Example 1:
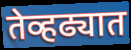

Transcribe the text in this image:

तेव्हढ्यात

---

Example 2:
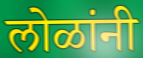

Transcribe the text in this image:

लोळांनी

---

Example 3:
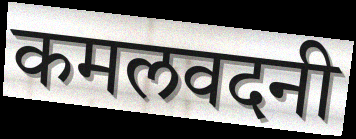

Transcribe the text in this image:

कमलवदनी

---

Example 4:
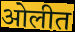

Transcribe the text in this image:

ओलीत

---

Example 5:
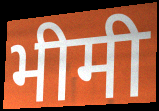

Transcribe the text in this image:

भीमी